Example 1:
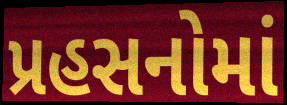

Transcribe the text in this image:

પ્રહસનોમાં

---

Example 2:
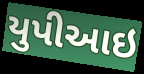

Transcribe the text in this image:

યુપીઆઇ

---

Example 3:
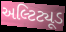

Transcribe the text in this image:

અલ્ટિટ્યૂડ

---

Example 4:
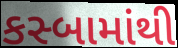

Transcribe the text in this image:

કસ્બામાંથી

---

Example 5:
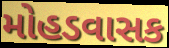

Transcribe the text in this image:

મોહડવાસક